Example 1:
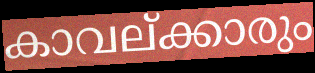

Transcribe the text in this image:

കാവല്ക്കാരും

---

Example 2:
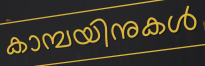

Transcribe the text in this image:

കാമ്പയിനുകൾ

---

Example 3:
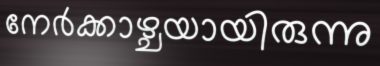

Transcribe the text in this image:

നേർക്കാഴ്ചയായിരുന്നു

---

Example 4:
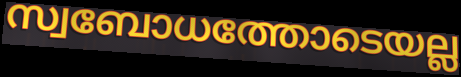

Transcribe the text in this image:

സ്വബോധത്തോടെയല്ല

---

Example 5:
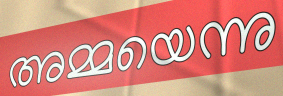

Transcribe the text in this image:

അമ്മയെന്നു